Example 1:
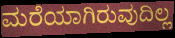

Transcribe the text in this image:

ಮರೆಯಾಗಿರುವುದಿಲ್ಲ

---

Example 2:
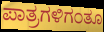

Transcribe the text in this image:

ಪಾತ್ರಗಳಿಗಂತೂ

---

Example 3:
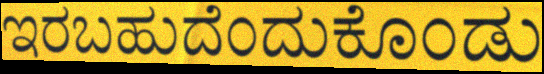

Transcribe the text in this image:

ಇರಬಹುದೆಂದುಕೊಂಡು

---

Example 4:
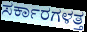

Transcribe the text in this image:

ಸರ್ಕಾರಗಳತ್ತ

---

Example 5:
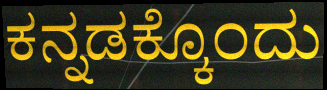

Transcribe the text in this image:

ಕನ್ನಡಕ್ಕೊಂದು